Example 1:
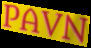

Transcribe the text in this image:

PAVN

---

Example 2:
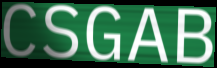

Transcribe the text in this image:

CSGAB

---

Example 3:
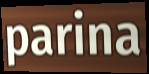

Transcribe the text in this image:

parina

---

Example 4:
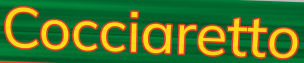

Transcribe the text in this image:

Cocciaretto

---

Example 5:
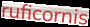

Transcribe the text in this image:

ruficornis